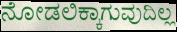
ನೋಡಲಿಕ್ಕಾಗುವುದಿಲ್ಲ